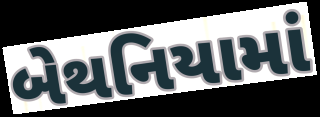
બેથનિયામાં